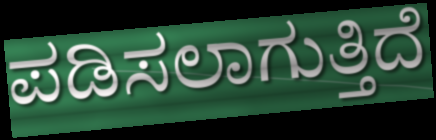
ಪಡಿಸಲಾಗುತ್ತಿದೆ